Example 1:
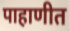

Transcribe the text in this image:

पाहाणीत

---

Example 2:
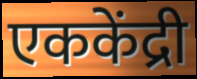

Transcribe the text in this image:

एककेंद्री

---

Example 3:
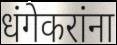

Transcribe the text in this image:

धंगेकरांना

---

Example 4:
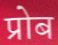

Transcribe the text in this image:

प्रोब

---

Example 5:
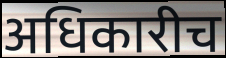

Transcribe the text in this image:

अधिकारीच